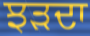
ਝੜਦਾ